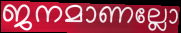
ജനമാണല്ലോ